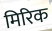
मिरिक